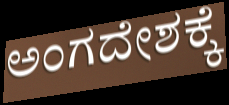
ಅಂಗದೇಶಕ್ಕೆ